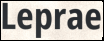
Leprae